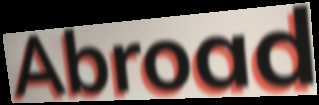
Abroad